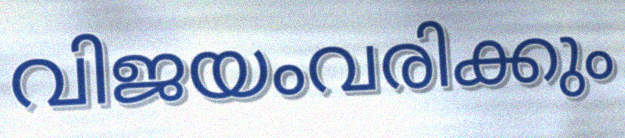
വിജയംവരിക്കും